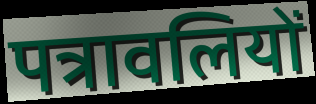
पत्रावलियों